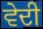
ਵੇਦੀ